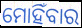
ମୋହିଁବାର